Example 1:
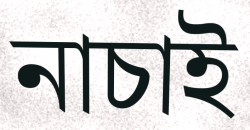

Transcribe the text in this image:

নাচাই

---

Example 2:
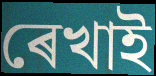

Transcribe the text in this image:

ৰেখাই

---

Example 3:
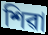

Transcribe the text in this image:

শিৱা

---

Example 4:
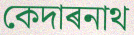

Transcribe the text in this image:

কেদাৰনাথ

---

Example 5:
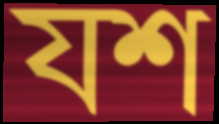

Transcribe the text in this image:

যশ